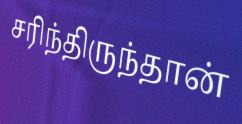
சரிந்திருந்தான்